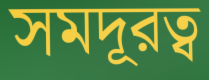
সমদূরত্ব